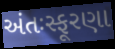
અંતઃસ્ફૂરણા